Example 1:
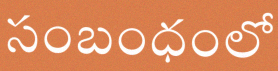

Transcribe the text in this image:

సంబంధంలో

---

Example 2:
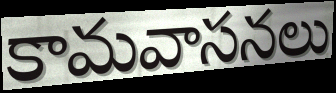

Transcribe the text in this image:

కామవాసనలు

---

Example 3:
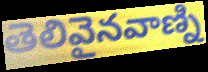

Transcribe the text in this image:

తెలివైనవాణ్ని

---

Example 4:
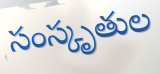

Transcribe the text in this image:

సంస్కృతుల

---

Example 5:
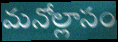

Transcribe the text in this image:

మనోల్లాసం